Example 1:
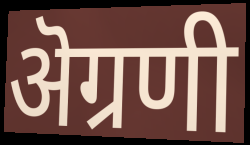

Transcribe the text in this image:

ऄग्रणी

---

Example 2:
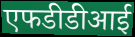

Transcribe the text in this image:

एफडीडीआई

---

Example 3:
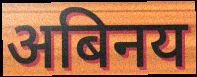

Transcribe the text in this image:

अबिनय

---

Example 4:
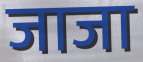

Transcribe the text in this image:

जाजा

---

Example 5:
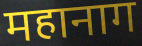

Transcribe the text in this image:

महानाग